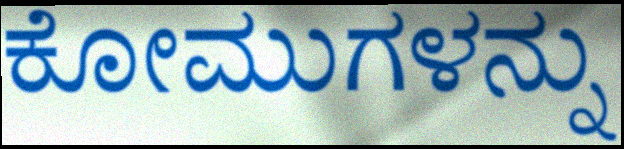
ಕೋಮುಗಳನ್ನು